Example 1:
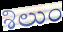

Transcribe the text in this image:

శిలుం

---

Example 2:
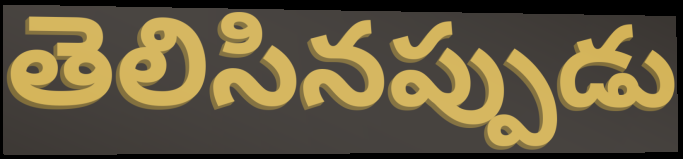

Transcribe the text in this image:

తెలిసినప్పుడు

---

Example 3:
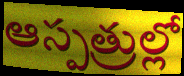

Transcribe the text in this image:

ఆస్పత్రుల్లో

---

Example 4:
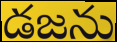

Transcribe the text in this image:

డజను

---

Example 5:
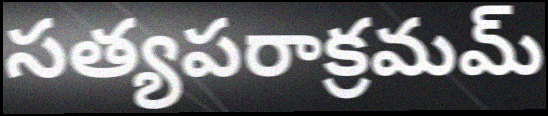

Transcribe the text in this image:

సత్యపరాక్రమమ్